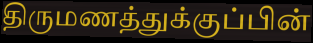
திருமணத்துக்குப்பின்